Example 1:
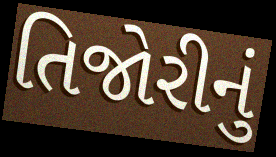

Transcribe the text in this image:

તિજોરીનું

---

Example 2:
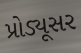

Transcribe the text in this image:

પ્રોડ્યૂસર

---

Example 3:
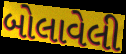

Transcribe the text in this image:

બોલાવેલી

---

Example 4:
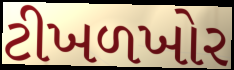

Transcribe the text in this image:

ટીખળખોર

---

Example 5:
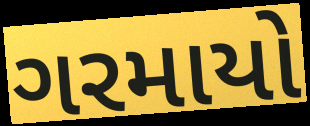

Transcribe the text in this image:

ગરમાયો